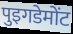
पुइगडेमोंट